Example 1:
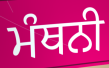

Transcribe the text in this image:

ਮੰਥਨੀ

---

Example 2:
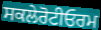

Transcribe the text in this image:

ਸਕਲੇਰੋਟੀਓਰਮ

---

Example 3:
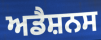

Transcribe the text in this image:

ਅਡੈਸ਼ਨਸ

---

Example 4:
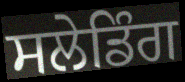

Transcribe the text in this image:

ਸਲੇਡਿੰਗ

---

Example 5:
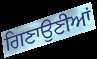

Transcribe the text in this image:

ਗਿਣਾਉਣੀਆਂ